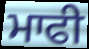
ਮਾਫੀ